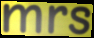
mrs